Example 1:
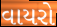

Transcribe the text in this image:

વાયરો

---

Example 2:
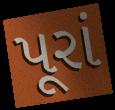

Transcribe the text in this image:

પૂરાં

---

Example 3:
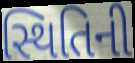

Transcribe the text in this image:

સ્થિતિની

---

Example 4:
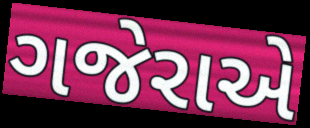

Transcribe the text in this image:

ગજેરાએ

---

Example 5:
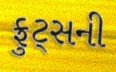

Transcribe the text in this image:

ફ્રુટ્સની